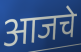
आजचे